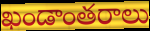
ఖండాంతరాలు